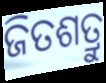
ଜିତଶତ୍ରୁ